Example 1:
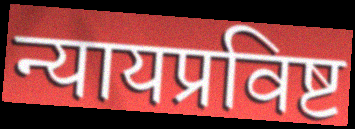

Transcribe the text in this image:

न्यायप्रविष्ट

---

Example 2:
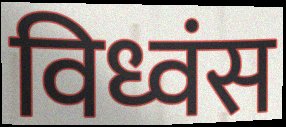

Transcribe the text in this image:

विध्वंस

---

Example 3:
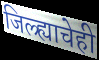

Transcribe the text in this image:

जिल्ह्याचेही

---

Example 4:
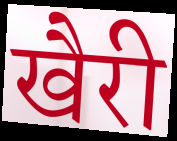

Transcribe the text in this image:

खैरी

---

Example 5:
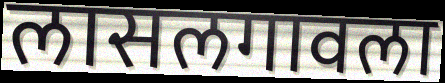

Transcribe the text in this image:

लासलगावला